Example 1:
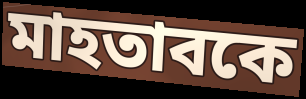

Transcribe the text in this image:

মাহতাবকে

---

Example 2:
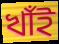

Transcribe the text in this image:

খাঁই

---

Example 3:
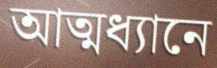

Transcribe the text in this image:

আত্মধ্যানে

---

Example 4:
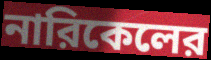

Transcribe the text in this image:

নারিকেলের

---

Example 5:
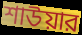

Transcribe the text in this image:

শাউয়ার